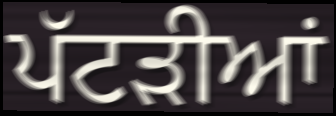
ਪੱਟੜੀਆਂ